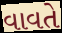
વાવતે